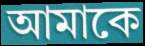
আমাকে